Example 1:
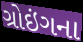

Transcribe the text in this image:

ગ્રોઇંગના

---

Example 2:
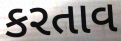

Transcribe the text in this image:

કરતાવ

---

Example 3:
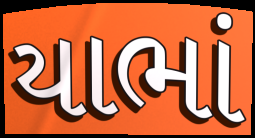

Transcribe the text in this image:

યાભાં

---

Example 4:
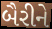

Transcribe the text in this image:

બૈરીને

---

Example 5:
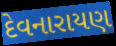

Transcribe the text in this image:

દેવનારાયણ